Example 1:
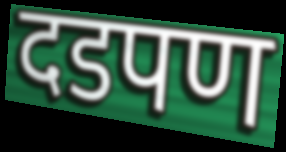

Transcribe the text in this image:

दडपण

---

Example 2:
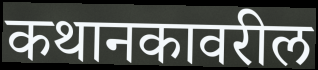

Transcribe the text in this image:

कथानकावरील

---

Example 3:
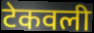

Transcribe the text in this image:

टेकवली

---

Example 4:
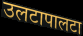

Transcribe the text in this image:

उलटापालटा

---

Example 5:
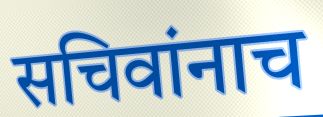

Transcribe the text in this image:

सचिवांनाच